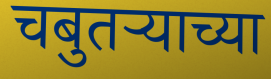
चबुतर्‍याच्या